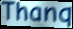
Thanq